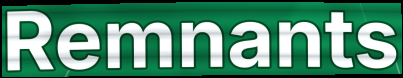
Remnants